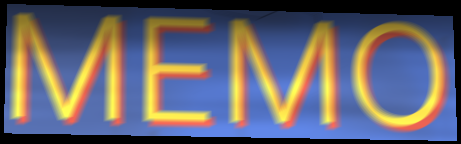
MEMO